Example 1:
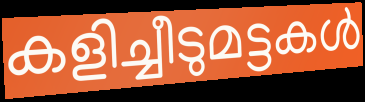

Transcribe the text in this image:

കളിച്ചീടുമട്ടകൾ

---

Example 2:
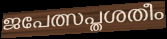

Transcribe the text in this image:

ജപേത്സപ്തശതീം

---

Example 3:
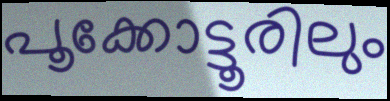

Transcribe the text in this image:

പൂക്കോട്ടൂരിലും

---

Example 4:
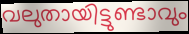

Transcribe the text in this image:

വലുതായിട്ടുണ്ടാവും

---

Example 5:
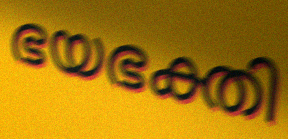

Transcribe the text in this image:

ഭയഭക്തി